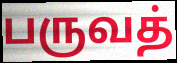
பருவத்